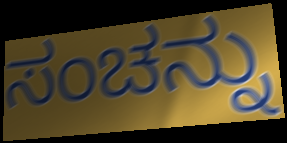
ಸಂಚನ್ನು